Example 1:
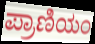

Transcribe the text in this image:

ಪ್ರಾಣಿಯಂ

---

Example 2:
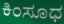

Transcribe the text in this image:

ಕಿಂಸೂಧ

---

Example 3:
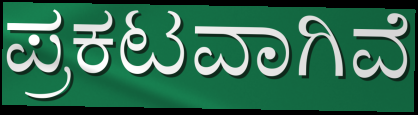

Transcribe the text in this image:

ಪ್ರಕಟವಾಗಿವೆ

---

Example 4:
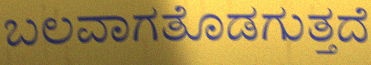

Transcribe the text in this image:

ಬಲವಾಗತೊಡಗುತ್ತದೆ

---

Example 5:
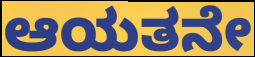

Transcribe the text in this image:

ಆಯತನೇ